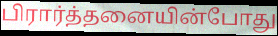
பிரார்த்தனையின்போது